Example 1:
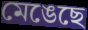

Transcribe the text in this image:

মেঙেছে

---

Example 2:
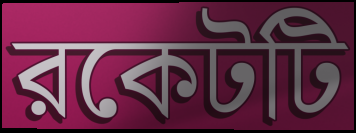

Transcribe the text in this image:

রকেটটি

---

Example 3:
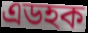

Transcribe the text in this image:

এডহক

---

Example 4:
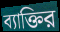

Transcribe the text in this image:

ব্যাক্তির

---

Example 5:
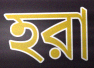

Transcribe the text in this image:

হরা